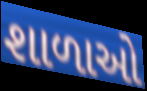
શાળાઓ